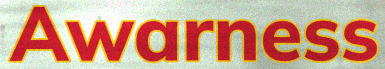
Awarness